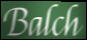
Balch